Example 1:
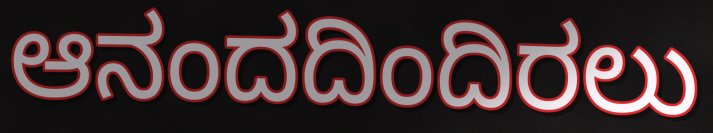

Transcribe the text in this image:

ಆನಂದದಿಂದಿರಲು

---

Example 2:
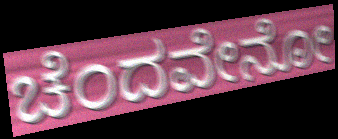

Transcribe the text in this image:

ಚೆಂದವೇನೋ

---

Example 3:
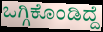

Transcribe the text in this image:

ಒಗ್ಗಿಕೊಂಡಿದ್ದೆ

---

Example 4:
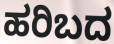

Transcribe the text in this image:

ಹರಿಬದ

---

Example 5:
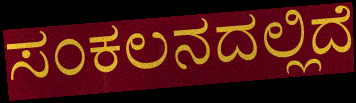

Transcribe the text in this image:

ಸಂಕಲನದಲ್ಲಿದೆ